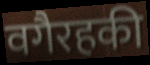
वगैरहकी